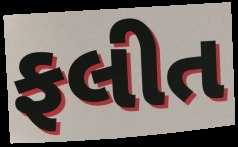
ફલીત